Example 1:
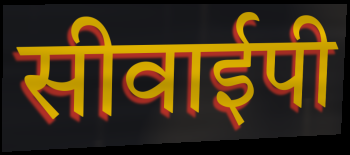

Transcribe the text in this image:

सीवाईपी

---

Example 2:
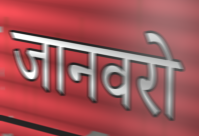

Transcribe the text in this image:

जानवरो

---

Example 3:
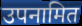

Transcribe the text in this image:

उपनामित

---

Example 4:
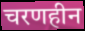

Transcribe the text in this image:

चरणहीन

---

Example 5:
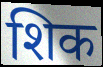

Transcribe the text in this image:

शिक